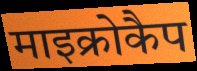
माइक्रोकैप